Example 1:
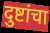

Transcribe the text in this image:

दुष्टांचा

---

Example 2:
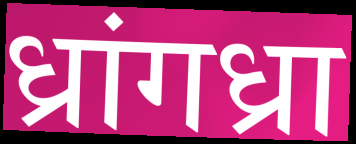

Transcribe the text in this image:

ध्रांगध्रा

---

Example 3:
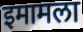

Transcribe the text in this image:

इमामला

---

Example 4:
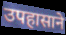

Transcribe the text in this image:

उपहासाने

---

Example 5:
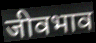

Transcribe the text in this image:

जीवभाव